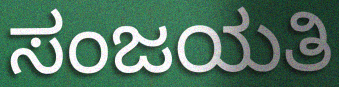
ಸಂಜಯತಿ